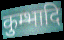
कुम्भादि